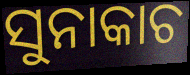
ସୁନାକାଚ